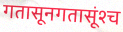
गतासूनगतासूंश्च